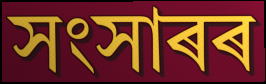
সংসাৰৰ